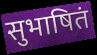
सुभाषितं